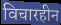
विचारहीन